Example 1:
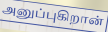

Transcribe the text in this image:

அனுப்புகிறான்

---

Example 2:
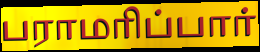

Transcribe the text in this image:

பராமரிப்பார்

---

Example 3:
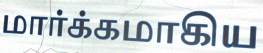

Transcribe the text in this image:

மார்க்கமாகிய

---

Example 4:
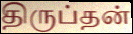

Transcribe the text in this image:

திருப்தன்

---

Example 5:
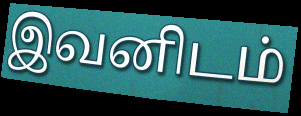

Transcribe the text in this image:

இவனிடம்